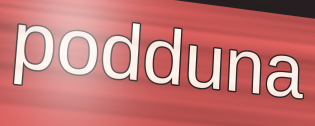
podduna